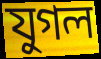
যুগল